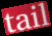
tail